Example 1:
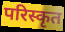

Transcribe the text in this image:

परिस्कृत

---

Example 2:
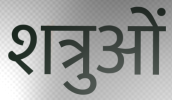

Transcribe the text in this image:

शत्रुओं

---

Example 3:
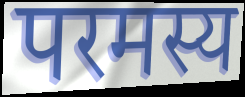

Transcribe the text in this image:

परमस्य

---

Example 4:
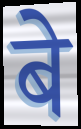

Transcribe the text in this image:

बे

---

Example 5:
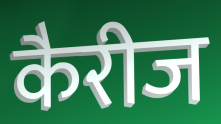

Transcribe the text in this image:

कैरीज